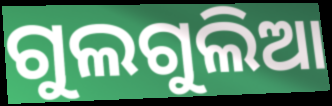
ଗୁଲଗୁଲିଆ